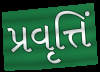
પ્રવૃત્તિં